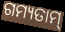
ଗମ୍ୟତାମ୍